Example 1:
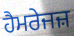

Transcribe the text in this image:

ਹੈਮਰੇਜਜ਼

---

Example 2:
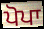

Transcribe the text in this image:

ਪੋਪਾ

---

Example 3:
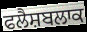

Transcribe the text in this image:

ਫਲੈਸ਼ਬਲਾਕ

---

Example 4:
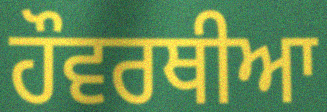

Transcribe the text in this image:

ਹੌਵਰਥੀਆ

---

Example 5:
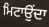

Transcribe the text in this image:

ਮਿਟਾਉਂਦਾ